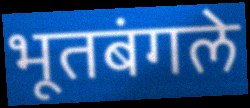
भूतबंगले